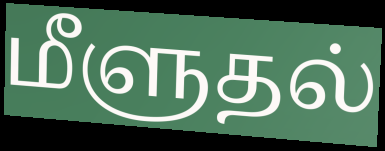
மீளுதல்